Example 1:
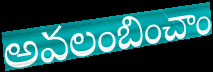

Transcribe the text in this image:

అవలంబించాం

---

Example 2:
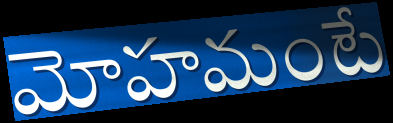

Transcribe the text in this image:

మోహమంటే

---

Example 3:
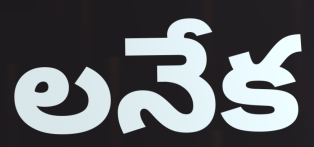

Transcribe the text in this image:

లనేక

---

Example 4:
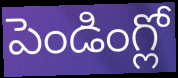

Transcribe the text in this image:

పెండింగ్లో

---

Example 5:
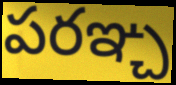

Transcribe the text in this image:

పరఞ్చ